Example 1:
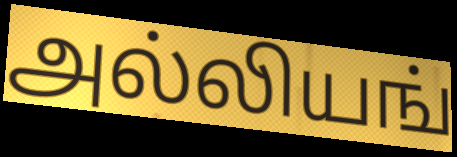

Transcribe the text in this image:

அல்லியங்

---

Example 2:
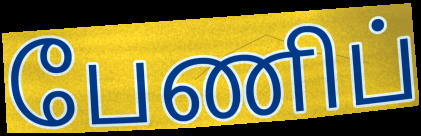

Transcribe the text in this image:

பேணிப்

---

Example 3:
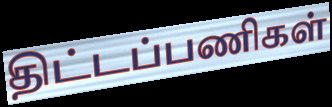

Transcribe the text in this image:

திட்டப்பணிகள்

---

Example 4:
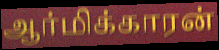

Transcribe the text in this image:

ஆர்மிக்காரன்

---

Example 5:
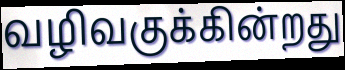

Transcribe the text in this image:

வழிவகுக்கின்றது